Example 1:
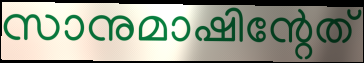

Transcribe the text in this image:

സാനുമാഷിന്റേത്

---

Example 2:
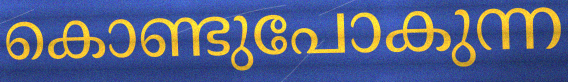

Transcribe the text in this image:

കൊണ്ടുപോകുന്ന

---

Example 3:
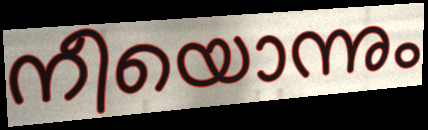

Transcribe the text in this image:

നീയൊന്നും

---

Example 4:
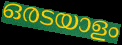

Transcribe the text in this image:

ഒരടയാളം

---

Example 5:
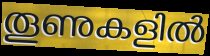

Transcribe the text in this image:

തൂണുകളിൽ